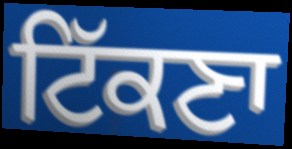
ਟਿੱਕਣਾ